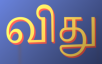
விது